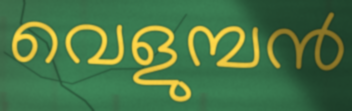
വെളുമ്പൻ